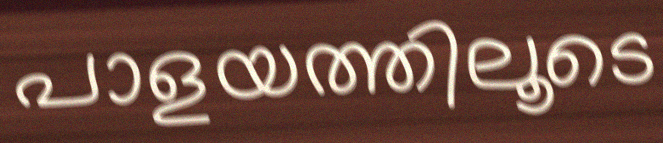
പാളയത്തിലൂടെ